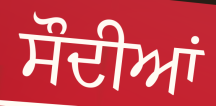
ਸੌਦੀਆਂ